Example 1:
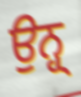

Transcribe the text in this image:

ਉਨ੍ਹ੍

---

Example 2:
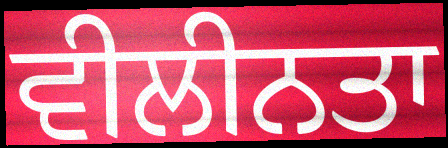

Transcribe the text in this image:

ਵੀਲੀਨਤਾ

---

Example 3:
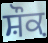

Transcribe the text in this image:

ਸ਼ੌਕ਼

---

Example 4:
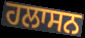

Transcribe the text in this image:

ਹਲਾਸਨ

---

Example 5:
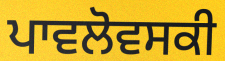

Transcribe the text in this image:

ਪਾਵਲੋਵਸਕੀ